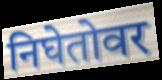
निघेतोवर